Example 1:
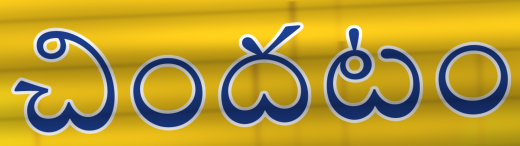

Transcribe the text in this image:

చిందటం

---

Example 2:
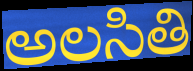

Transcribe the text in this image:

అలసితి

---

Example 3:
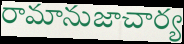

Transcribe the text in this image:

రామానుజాచార్య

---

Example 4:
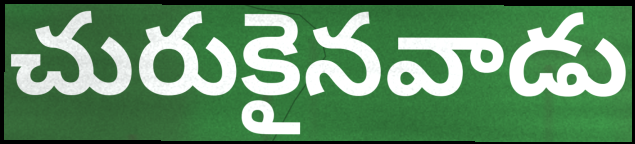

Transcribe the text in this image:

చురుకైనవాడు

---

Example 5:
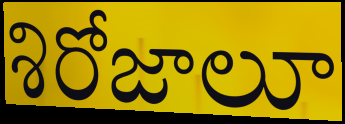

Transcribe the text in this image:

శిరోజాలూ